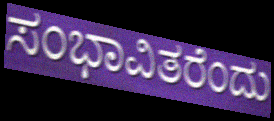
ಸಂಭಾವಿತರೆಂದು